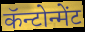
कॅन्टोन्मेंट